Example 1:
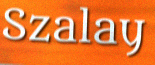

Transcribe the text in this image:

Szalay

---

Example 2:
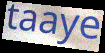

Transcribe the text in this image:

taaye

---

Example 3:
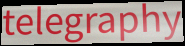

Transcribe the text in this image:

telegraphy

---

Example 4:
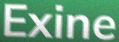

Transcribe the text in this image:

Exine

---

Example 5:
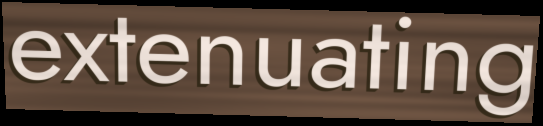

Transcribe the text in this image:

extenuating